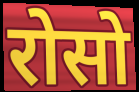
रोसो